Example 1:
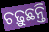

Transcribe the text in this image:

ଚଢ଼ୁଛନ୍ତି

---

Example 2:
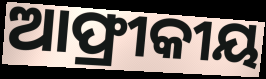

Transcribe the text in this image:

ଆଫ୍ରୀକୀୟ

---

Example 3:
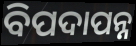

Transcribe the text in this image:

ବିପଦାପନ୍ନ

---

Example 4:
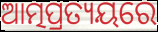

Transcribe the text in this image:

ଆତ୍ମପ୍ରତ୍ୟୟରେ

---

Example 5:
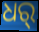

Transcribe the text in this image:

ଧର୍